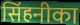
सिंहनीका